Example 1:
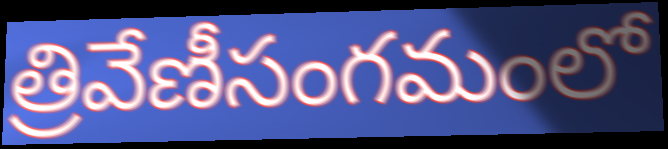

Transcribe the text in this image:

త్రివేణీసంగమంలో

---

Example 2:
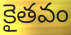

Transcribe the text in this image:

కైతవం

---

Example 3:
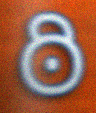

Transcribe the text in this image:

ఠి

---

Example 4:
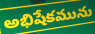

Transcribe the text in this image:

అభిషేకమును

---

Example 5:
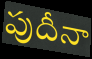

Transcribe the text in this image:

పుదీనా